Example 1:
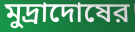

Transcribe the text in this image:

মুদ্রাদোষের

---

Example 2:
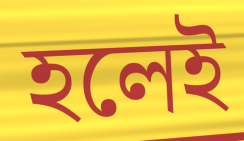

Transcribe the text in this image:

হলেই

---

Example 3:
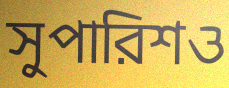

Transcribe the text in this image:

সুপারিশও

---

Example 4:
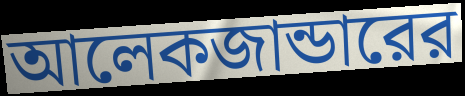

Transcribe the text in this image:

আলেকজান্ডারের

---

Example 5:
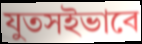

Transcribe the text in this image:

যুতসইভাবে